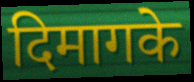
दिमागके